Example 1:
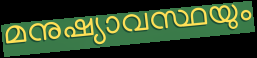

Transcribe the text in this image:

മനുഷ്യാവസ്ഥയും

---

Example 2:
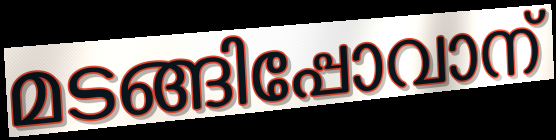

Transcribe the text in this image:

മടങ്ങിപ്പോവാന്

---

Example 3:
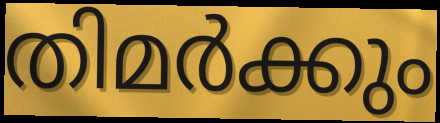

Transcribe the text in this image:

തിമർക്കും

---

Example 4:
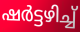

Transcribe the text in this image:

ഷർട്ടഴിച്ച്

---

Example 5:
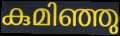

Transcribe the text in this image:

കുമിഞ്ഞു